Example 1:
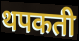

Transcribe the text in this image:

थपकती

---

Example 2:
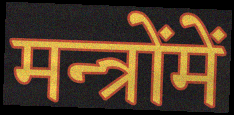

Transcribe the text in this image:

मन्त्रोंमें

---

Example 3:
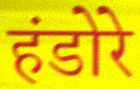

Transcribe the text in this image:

हंडोरे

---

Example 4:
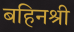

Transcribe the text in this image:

बहिनश्री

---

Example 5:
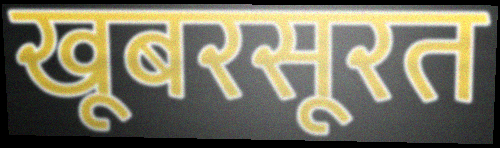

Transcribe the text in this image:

खूबरसूरत